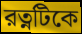
রত্নটিকে